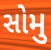
સોમુ